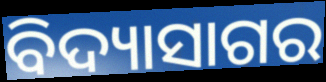
ବିଦ୍ୟାସାଗର